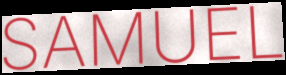
SAMUEL